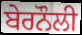
ਬੇਰਨੌਲੀ